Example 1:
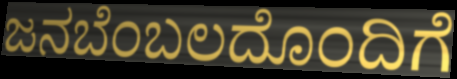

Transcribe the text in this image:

ಜನಬೆಂಬಲದೊಂದಿಗೆ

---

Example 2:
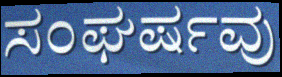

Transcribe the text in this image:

ಸಂಘರ್ಷವು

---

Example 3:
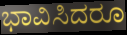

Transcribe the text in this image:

ಭಾವಿಸಿದರೂ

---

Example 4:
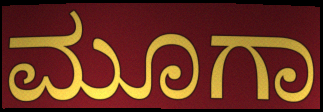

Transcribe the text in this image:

ಮೂಗಾ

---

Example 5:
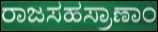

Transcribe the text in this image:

ರಾಜಸಹಸ್ರಾಣಾಂ